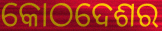
କୋଠଦେଶର